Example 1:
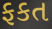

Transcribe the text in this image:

ફકત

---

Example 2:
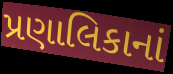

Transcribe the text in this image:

પ્રણાલિકાનાં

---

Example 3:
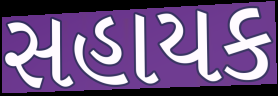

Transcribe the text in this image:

સહાયક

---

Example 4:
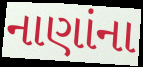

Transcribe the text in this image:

નાણાંના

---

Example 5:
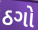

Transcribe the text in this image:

ઠગો